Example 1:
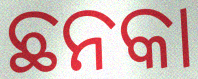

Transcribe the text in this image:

ଛନକା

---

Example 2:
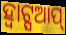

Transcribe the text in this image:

ହ୍ୱାଟ୍ସଆପ୍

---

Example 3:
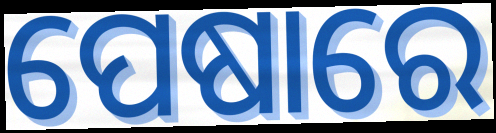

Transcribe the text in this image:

ପେଷାରେ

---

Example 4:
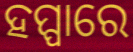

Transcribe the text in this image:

ହପ୍ପାରେ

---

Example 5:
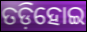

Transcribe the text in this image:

ତଡ଼ିହୋଇ